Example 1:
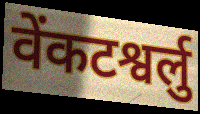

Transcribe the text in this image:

वेंकटश्वर्लु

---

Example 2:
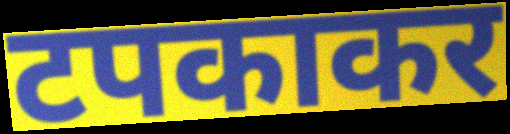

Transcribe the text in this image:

टपकाकर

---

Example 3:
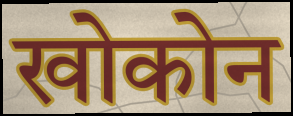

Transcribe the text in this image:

खोकोन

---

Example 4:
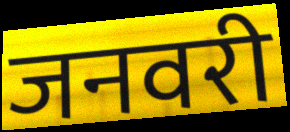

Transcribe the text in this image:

जनवरी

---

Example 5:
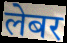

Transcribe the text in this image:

लेबर